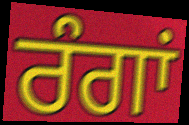
ਰੰਗਾਂ